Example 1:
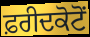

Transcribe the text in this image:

ਫ਼ਰੀਦਕੋਟੋਂ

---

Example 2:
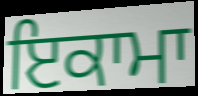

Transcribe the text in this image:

ਇਕਾਮਾ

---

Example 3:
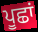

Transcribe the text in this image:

ਪੂਛਾਂ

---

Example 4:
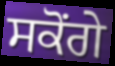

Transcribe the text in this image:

ਸਕੋਂਗੇ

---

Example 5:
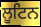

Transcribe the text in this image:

ਲੂਟਿਨ